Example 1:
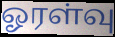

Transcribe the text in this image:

ஓரள்வு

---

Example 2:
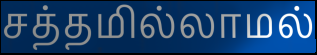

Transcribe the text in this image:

சத்தமில்லாமல்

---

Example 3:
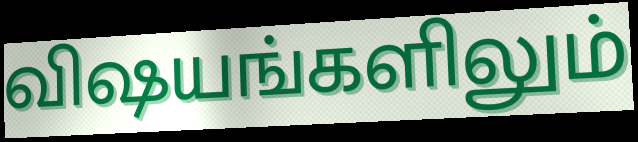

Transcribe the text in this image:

விஷயங்களிலும்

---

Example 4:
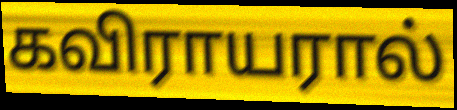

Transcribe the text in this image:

கவிராயரால்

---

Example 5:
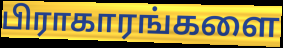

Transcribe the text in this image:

பிராகாரங்களை